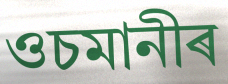
ওচমানীৰ